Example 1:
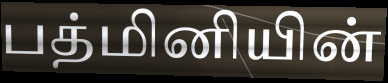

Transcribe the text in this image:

பத்மினியின்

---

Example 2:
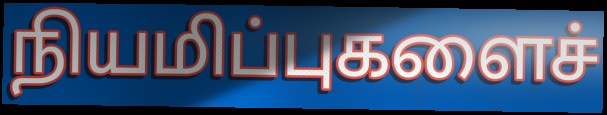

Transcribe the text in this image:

நியமிப்புகளைச்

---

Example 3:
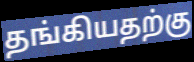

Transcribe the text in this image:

தங்கியதற்கு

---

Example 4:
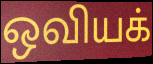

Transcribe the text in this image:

ஒவியக்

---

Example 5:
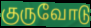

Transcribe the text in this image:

குருவோடு